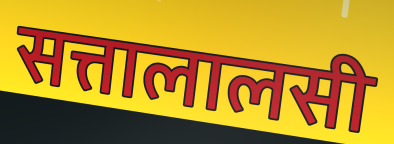
सत्तालालसी